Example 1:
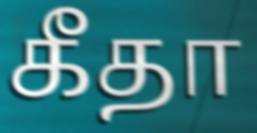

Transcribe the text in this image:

கீதா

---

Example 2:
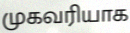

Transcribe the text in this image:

முகவரியாக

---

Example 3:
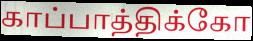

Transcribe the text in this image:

காப்பாத்திக்கோ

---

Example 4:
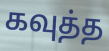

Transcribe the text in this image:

கவுத்த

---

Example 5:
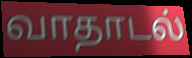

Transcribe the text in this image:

வாதாடல்